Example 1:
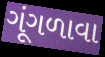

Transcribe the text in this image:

ગૂંગળાવા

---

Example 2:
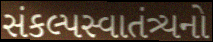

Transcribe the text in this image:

સંકલ્પસ્વાતંત્ર્યનો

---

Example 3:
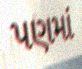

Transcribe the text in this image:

પણમાં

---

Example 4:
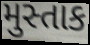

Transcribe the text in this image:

મુસ્તાક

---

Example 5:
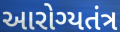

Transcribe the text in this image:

આરોગ્યતંત્ર